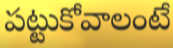
పట్టుకోవాలంటే